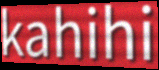
kahihi